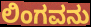
ಲಿಂಗವನು